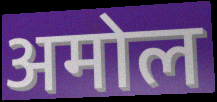
अमोल